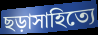
ছড়াসাহিত্যে